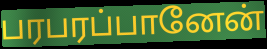
பரபரப்பானேன்